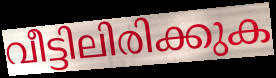
വീട്ടിലിരിക്കുക